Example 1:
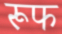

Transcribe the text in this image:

रूफ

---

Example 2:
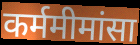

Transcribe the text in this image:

कर्ममीमांसा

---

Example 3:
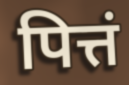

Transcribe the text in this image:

पित्तं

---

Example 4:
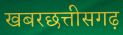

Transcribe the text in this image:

खबरछत्तीसगढ़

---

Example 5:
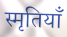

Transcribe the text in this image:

स्मृतियाँ